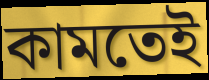
কামতেই